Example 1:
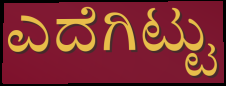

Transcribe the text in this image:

ಎದೆಗಿಟ್ಟು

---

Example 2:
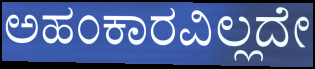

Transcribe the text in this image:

ಅಹಂಕಾರವಿಲ್ಲದೇ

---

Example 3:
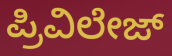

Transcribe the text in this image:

ಪ್ರಿವಿಲೇಜ್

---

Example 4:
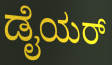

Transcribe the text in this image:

ಡೈಯರ್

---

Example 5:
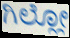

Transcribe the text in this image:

ಗಿಲ್ಲೋ